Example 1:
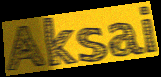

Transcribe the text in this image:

Aksai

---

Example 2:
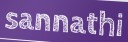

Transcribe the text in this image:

sannathi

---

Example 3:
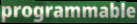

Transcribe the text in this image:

programmable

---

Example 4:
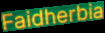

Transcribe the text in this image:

Faidherbia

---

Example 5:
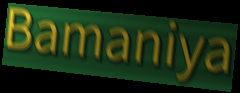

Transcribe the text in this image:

Bamaniya